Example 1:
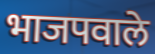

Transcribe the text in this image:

भाजपवाले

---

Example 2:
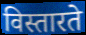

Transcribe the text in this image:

विस्तारते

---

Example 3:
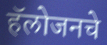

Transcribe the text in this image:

हॅलोजनचे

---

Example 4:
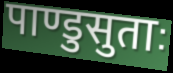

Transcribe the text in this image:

पाण्डुसुताः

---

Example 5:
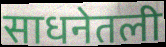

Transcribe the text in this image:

साधनेतली